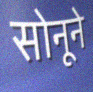
सोनूने